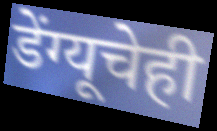
डेंग्यूचेही